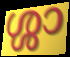
ശ്ശാ